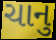
ચાનુ